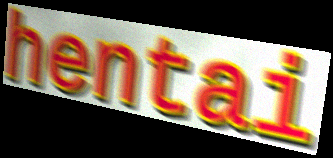
hentai